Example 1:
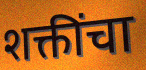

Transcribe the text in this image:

शक्तींचा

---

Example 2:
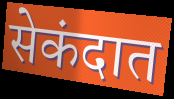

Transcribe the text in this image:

सेकंदात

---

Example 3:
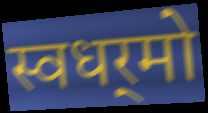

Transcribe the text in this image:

स्वधर्मो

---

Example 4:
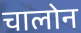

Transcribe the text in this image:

चालोन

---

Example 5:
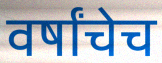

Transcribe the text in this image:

वर्षांचेच